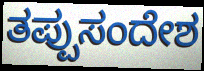
ತಪ್ಪುಸಂದೇಶ